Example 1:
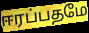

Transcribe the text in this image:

ஈரப்பதமே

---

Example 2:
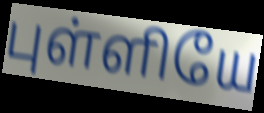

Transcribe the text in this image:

புள்ளியே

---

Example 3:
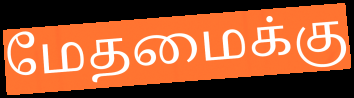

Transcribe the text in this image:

மேதமைக்கு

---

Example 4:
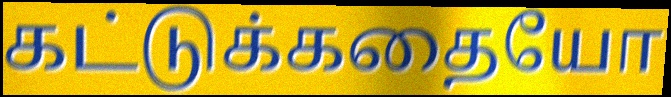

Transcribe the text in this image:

கட்டுக்கதையோ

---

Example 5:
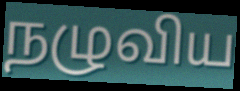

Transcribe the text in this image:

நழுவிய